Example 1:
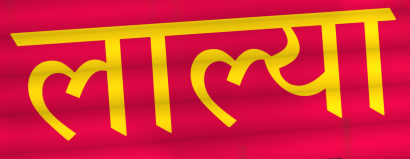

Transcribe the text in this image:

लाल्या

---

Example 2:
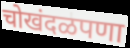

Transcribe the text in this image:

चोखंदळपणा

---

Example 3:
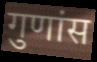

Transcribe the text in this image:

गुणांस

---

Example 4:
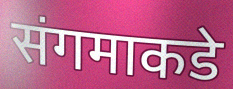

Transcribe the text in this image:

संगमाकडे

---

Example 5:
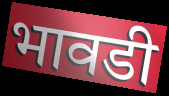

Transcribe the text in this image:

भावडी